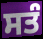
ਸਤੰ